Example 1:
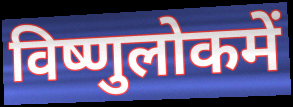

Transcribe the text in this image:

विष्णुलोकमें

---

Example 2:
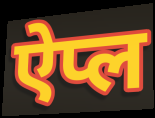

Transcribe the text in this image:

ऐप्ल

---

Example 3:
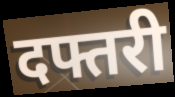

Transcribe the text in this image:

दफ्तरी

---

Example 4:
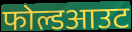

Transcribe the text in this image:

फोल्डआउट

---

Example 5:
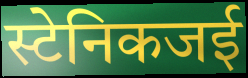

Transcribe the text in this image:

स्टेनिकजई